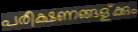
പരീക്ഷണങ്ങള്ക്കും